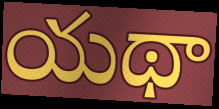
యథా